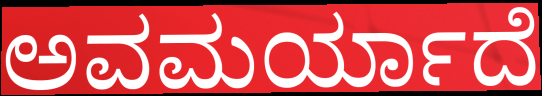
ಅವಮರ್ಯಾದೆ